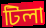
টিলা